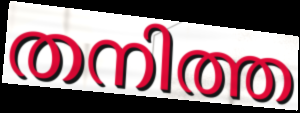
തനിത്ത